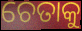
ଚେତାକୁ